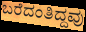
ಬರೆದಂತಿದ್ದವು